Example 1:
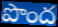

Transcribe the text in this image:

పొంద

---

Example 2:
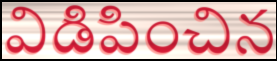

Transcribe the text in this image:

విడిపించిన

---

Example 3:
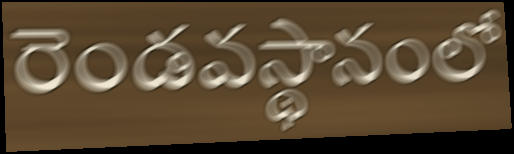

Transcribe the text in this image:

రెండవస్థానంలో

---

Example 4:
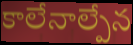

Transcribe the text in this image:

కాలేనాల్పేన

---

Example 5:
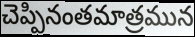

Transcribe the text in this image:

చెప్పినంతమాత్రమున